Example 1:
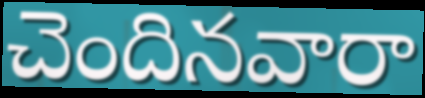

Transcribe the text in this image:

చెందినవారా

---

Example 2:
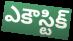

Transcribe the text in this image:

ఎకౌస్టిక్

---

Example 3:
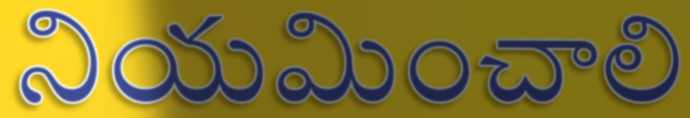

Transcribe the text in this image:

నియమించాలి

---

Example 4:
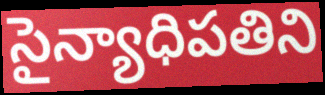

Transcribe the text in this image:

సైన్యాధిపతిని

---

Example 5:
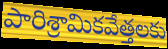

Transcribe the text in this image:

పారిశ్రామికవేత్తలకు